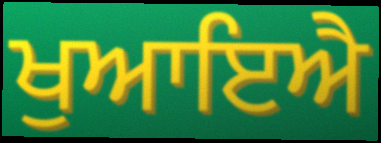
ਖੁਆਇਐ